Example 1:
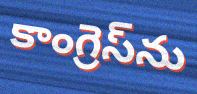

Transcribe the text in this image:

కాంగ్రెస్‌ను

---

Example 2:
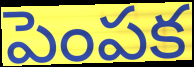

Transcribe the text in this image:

పెంపక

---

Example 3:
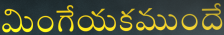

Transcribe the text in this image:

మింగేయకముందే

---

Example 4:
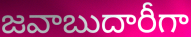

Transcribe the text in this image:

జవాబుదారీగా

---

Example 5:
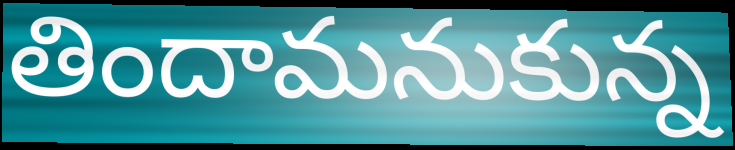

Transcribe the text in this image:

తిందామనుకున్న